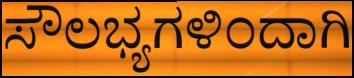
ಸೌಲಭ್ಯಗಳಿಂದಾಗಿ